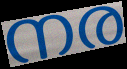
നര